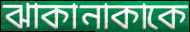
ঝাকানাকাকে